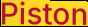
Piston